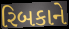
રિબકાને